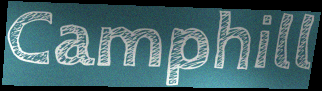
Camphill